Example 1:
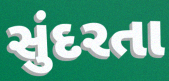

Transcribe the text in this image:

સુંદરતા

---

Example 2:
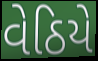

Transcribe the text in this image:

વેઠિયે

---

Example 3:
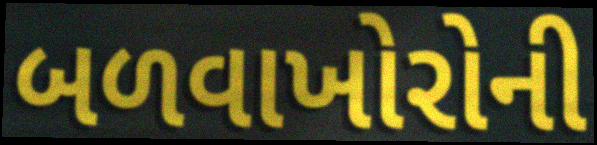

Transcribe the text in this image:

બળવાખોરોની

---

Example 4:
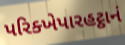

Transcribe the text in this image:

પરિક્ખેપારહટ્ઠાનં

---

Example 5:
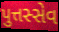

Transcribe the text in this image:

પુત્તસ્સેવ